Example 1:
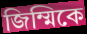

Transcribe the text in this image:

জিম্মিকে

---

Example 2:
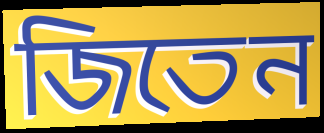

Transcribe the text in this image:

জিতেন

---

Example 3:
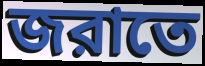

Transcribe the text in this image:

জরাতে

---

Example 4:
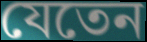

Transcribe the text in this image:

যেতেন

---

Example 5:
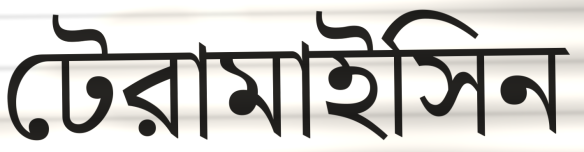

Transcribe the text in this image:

টেরামাইসিন